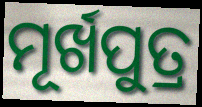
ମୂର୍ଖପୁତ୍ର